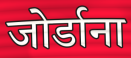
जोर्डाना